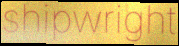
shipwright